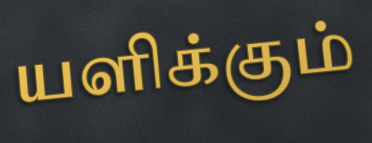
யளிக்கும்